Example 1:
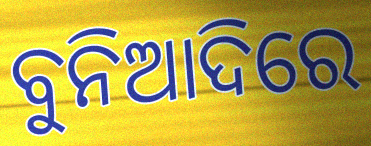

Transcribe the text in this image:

ବୁନିଆଦିରେ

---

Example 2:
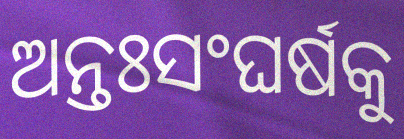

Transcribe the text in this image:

ଅନ୍ତଃସଂଘର୍ଷକୁ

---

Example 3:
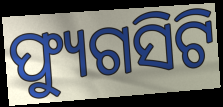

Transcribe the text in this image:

ଫ୍ୟୁଗସିଟି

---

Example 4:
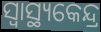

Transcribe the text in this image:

ସ୍ବାସ୍ଥ୍ୟକେନ୍ଦ୍ର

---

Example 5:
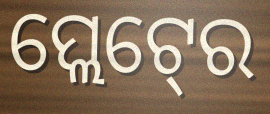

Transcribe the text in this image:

ପ୍ଲେଟ୍‍ରେ